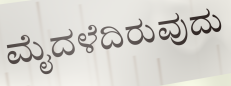
ಮೈದಳೆದಿರುವುದು